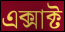
এক্সাক্ট